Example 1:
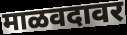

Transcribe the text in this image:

माळवदावर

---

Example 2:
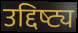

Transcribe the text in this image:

उद्दिष्ट्य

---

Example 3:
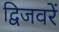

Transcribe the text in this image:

द्विजवरें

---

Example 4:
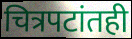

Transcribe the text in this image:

चित्रपटांतही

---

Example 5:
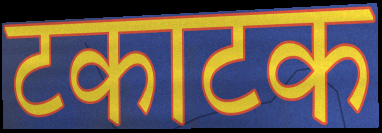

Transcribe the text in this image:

टकाटक